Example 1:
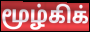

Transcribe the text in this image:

மூழ்கிக்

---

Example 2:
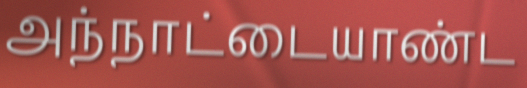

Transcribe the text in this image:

அந்நாட்டையாண்ட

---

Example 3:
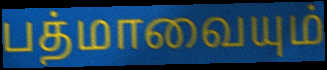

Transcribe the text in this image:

பத்மாவையும்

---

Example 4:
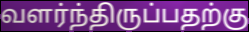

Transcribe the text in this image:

வளர்ந்திருப்பதற்கு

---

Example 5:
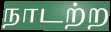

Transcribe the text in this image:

நாடற்ற